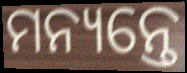
ମନ୍ୟନ୍ତେ